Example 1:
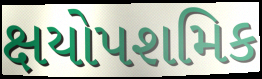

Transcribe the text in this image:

ક્ષયોપશમિક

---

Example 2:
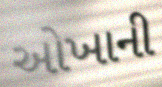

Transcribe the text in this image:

ઓખાની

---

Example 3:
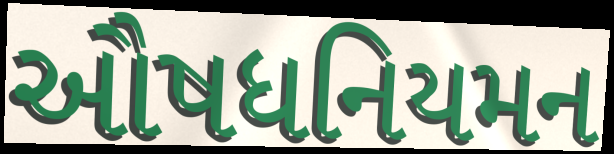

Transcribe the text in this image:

ઔષધનિયમન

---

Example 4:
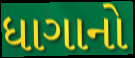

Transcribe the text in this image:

ધાગાનો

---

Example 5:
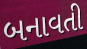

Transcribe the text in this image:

બનાવતી